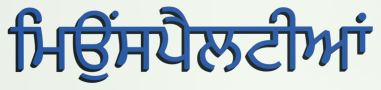
ਮਿਉਂਸਪੈਲਟੀਆਂ